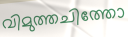
വിമുത്തചിത്തോ